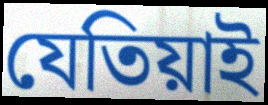
যেতিয়াই